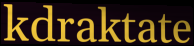
kdraktate